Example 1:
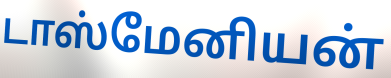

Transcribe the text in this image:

டாஸ்மேனியன்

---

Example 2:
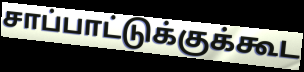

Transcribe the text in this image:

சாப்பாட்டுக்குக்கூட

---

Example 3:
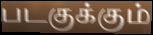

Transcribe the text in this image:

படகுக்கும்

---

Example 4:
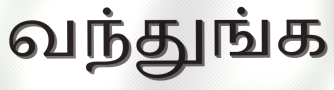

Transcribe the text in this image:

வந்துங்க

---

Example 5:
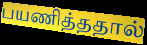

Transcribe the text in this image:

பயணித்ததால்